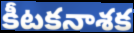
కీటకనాశక